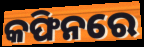
କଫିନରେ